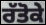
ਰੱਤੋਕੇ